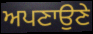
ਅਪਣਾਉਣੇ